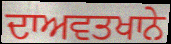
ਦਾਅਵਤਖਾਨੇ